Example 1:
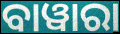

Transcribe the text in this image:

ବାୱାରା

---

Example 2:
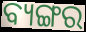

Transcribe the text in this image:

ବ୍ୟଙ୍ଗର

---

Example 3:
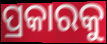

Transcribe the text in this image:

ପ୍ରକାରକୁ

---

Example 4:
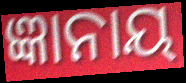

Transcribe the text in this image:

ଜ୍ଞାନାୟ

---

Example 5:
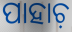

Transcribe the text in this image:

ପାହାଚ଼